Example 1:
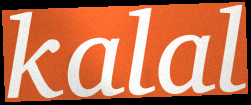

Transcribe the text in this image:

kalal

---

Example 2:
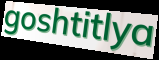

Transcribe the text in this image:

goshtitlya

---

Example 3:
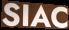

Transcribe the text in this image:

SIAC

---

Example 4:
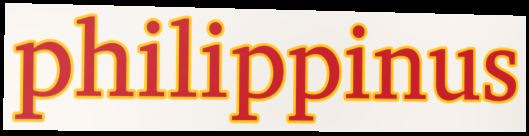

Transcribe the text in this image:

philippinus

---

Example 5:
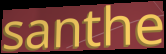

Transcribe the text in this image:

santhe